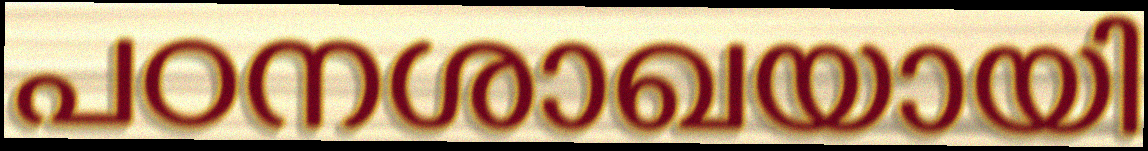
പഠനശാഖയായി